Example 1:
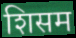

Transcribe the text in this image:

शिसम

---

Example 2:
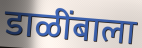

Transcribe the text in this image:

डाळींबाला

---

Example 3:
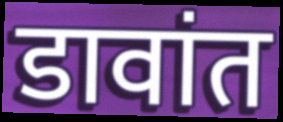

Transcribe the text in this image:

डावांत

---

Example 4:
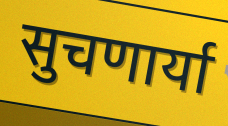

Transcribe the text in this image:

सुचणार्या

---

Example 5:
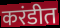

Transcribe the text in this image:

करंडीत